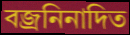
বজ্রনিনাদিত